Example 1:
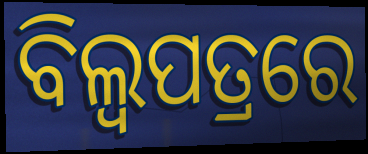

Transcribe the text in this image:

ବିଲ୍ଵପତ୍ରରେ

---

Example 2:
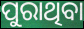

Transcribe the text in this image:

ପୁରାଥିବା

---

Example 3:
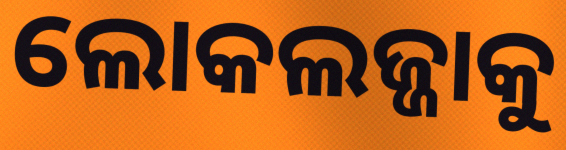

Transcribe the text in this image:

ଲୋକଲଜ୍ଜାକୁ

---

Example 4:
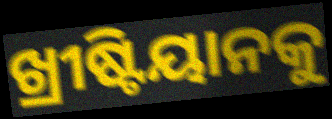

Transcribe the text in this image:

ଖ୍ରୀଷ୍ଟିୟାନକୁ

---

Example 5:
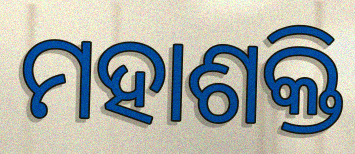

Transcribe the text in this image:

ମହାଶକ୍ତି